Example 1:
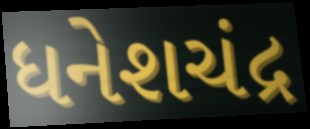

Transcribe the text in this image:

ધનેશચંદ્ર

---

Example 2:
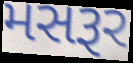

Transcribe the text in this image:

મસરૂર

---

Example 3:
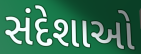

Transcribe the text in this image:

સંદેશાઓ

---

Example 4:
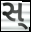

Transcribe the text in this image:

સ્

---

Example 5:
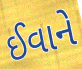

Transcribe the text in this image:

ઈવાને